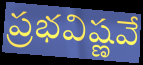
ప్రభవిష్ణవే